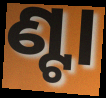
ଣ୍ଟା